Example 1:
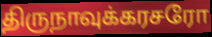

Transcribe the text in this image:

திருநாவுக்கரசரோ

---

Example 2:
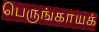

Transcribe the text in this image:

பெருங்காயக்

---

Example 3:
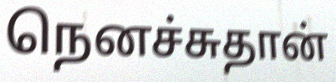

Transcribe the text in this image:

நெனச்சுதான்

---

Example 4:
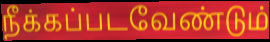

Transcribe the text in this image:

நீக்கப்படவேண்டும்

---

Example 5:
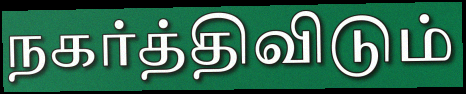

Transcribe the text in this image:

நகர்த்திவிடும்